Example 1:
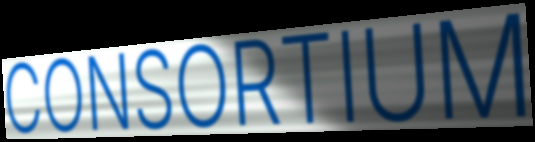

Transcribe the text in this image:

CONSORTIUM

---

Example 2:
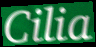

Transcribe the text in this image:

Cilia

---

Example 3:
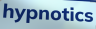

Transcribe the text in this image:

hypnotics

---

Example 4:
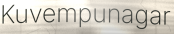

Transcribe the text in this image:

Kuvempunagar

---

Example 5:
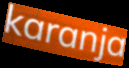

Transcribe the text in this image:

karanja